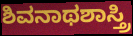
ಶಿವನಾಥಶಾಸ್ತ್ರಿ